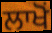
ਲਾਖੋਂ